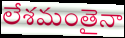
లేశమంతైనా